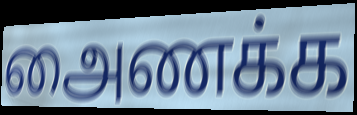
அைணக்க